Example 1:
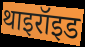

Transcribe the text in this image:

थाइरॉइड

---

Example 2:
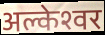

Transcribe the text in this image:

अल्केश्वर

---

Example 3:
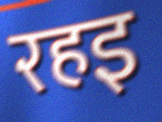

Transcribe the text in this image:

रहइ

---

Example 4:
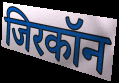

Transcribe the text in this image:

जिरकॉन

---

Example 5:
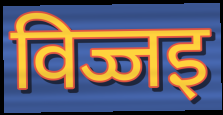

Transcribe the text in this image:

विज्जइ